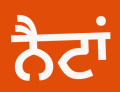
ਨੈਟਾਂ